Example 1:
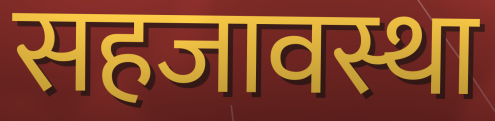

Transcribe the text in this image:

सहजावस्था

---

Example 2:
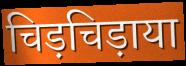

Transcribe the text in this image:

चिड़चिड़ाया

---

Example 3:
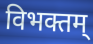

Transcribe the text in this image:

विभक्तम्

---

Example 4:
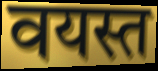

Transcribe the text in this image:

वयस्त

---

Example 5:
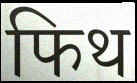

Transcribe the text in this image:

फिथ